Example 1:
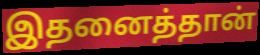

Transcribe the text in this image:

இதனைத்தான்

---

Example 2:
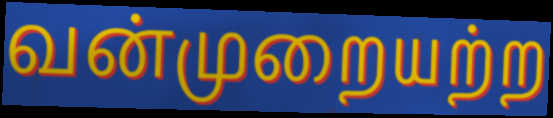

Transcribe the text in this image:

வன்முறையற்ற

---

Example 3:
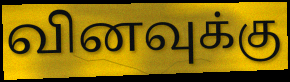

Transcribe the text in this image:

வினவுக்கு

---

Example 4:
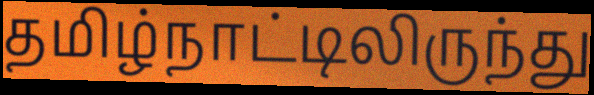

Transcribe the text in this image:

தமிழ்நாட்டிலிருந்து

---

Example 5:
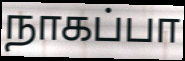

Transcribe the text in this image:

நாகப்பா